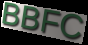
BBFC